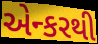
એન્કરથી